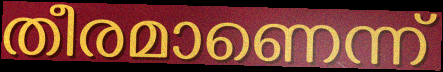
തീരമാണെന്ന്